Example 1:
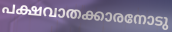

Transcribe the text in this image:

പക്ഷവാതക്കാരനോടു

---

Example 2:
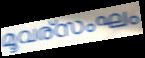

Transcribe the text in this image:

മൂവര്സംഘം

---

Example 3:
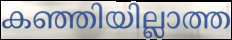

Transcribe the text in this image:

കഞ്ഞിയില്ലാത്ത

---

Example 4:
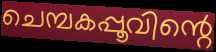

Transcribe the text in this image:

ചെമ്പകപ്പൂവിന്റെ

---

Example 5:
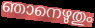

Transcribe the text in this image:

ഞാനെഴുതും